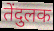
तेंदुलक